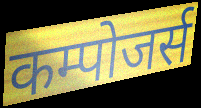
कम्पोजर्स